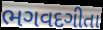
ભગવદગીતા